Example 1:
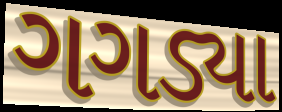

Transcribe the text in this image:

ગગડ્યા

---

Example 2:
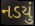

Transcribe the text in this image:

નડયું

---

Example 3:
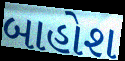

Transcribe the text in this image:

બાહોશ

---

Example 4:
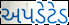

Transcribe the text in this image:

અપડેટેડ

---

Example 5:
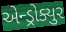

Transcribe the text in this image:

એન્ડ્રોક્યુર